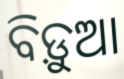
ବିଡ଼ୁଆ